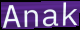
Anak